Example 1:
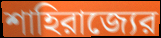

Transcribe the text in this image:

শাহিরাজ্যের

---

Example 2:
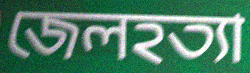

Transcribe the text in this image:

জেলহত্যা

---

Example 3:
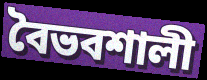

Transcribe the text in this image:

বৈভবশালী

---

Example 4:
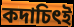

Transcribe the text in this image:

কদাচিৎই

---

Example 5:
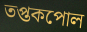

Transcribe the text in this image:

তপ্তকপোল